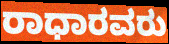
ರಾಧಾರವರು